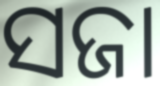
ସଜା